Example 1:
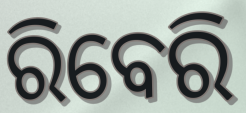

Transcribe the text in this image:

ରିବେରି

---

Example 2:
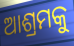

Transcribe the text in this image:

ଆଶ୍ରମକୁ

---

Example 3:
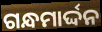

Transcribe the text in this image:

ଗନ୍ଧମାର୍ଦ୍ଦନ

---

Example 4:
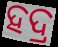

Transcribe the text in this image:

ହଦ୍ର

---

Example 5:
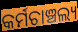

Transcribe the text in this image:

କର୍ମଚାଞ୍ଚଲ୍ୟ